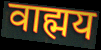
वाह्मय